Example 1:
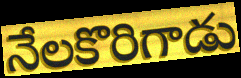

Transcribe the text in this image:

నేలకొరిగాడు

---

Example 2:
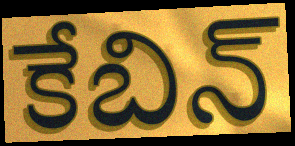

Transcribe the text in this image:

కేబిన్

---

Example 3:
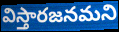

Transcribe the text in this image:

విస్తారజనమని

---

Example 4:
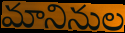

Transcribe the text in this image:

మానినుల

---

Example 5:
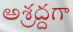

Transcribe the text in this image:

అశ్రద్దగా